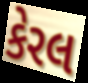
કેરલ